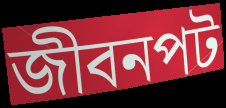
জীবনপট